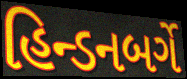
હિન્ડનબર્ગે